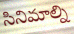
సినిమాల్ని